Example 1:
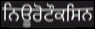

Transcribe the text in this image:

ਨਿਊਰੋਟੌਕਸਿਨ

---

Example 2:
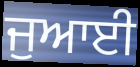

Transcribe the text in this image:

ਜੁਆਈ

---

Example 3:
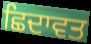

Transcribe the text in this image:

ਛਿਦਾਵਤ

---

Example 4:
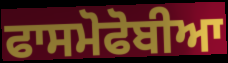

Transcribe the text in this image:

ਫਾਸਮੋਫੋਬੀਆ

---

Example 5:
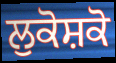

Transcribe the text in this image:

ਲੁਕੋਸ਼ਕੋ